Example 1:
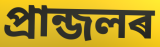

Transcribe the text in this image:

প্ৰান্জলৰ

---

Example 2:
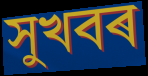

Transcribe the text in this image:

সুখবৰ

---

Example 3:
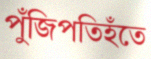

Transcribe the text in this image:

পুঁজিপতিহঁতে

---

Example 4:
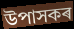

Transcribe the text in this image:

উপাসকৰ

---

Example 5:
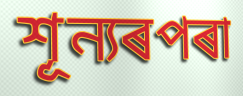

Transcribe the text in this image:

শূন্যৰপৰা